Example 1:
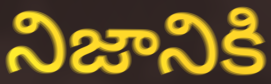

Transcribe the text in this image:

నిజానికి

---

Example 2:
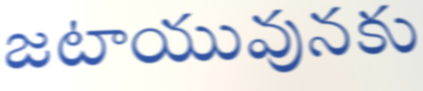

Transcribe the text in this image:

జటాయువునకు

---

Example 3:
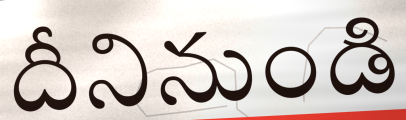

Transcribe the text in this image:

దీనినుండి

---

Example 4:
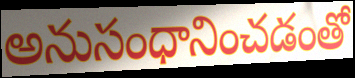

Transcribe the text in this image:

అనుసంధానించడంతో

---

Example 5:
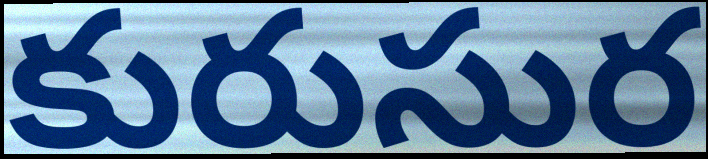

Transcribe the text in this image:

కురుసుర